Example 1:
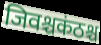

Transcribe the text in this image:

जिवश्चकंठश्च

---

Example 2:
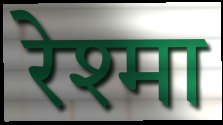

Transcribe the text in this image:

रेश्मा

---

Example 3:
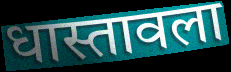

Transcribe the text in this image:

धास्तावला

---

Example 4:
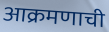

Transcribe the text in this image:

आक्रमणाची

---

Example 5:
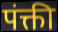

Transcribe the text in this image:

पंक्ती